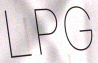
LPG